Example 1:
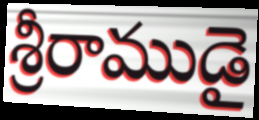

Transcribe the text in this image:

శ్రీరాముడై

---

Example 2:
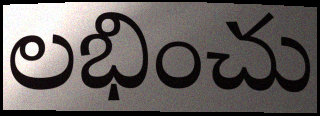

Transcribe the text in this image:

లభించు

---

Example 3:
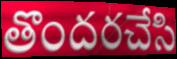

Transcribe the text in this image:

తొందరచేసి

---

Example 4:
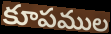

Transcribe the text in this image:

కూపముల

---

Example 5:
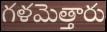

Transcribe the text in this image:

గళమెత్తారు